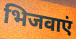
भिजवाएं